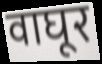
वाघूर